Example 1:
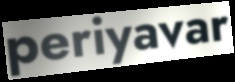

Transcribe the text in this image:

periyavar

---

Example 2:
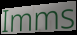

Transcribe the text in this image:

Imms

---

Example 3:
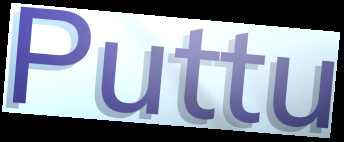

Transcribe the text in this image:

Puttu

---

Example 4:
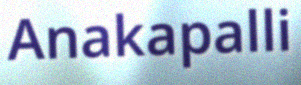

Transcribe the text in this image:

Anakapalli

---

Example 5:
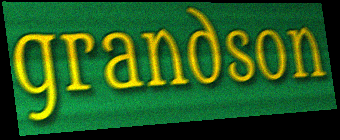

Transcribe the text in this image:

grandson